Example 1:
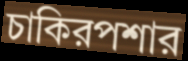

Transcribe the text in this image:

চাকিরপশার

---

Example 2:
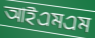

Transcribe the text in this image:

আইএমএম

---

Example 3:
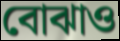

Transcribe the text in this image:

বোঝাও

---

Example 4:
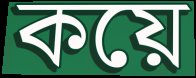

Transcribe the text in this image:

কয়ে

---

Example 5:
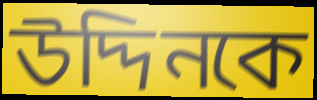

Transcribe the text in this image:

উদ্দিনকে